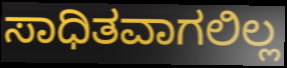
ಸಾಧಿತವಾಗಲಿಲ್ಲ